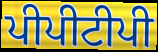
ਪੀਪੀਟੀਪੀ